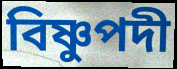
বিষ্ণুপদী